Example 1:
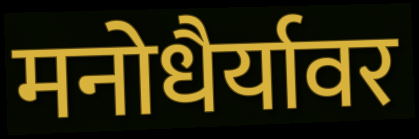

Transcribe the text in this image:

मनोधैर्यावर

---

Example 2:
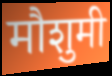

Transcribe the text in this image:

मौशुमी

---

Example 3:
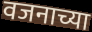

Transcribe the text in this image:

वजनाच्या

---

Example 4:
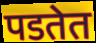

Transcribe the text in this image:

पडतेत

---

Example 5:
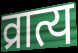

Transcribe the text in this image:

व्रात्य